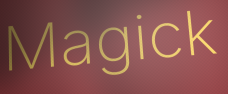
Magick